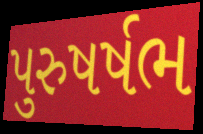
પુરુષર્ષભ